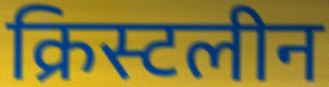
क्रिस्टलीन